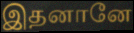
இதனானே